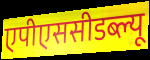
एपीएससीडब्ल्यू